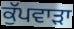
ਕੁੱਪਵਾੜਾ